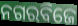
ନଗରବିଜେ